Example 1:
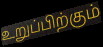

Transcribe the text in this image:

உறுப்பிற்கும்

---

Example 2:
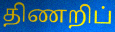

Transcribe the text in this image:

திணறிப்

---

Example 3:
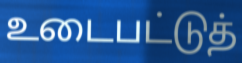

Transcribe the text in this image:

உடைபட்டுத்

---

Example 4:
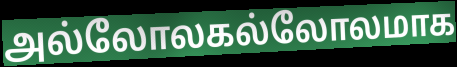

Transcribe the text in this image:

அல்லோலகல்லோலமாக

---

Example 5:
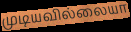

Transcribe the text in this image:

முடியவில்லையா